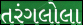
તરંગલોલા